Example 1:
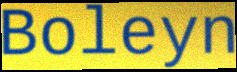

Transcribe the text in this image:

Boleyn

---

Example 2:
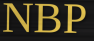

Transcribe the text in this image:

NBP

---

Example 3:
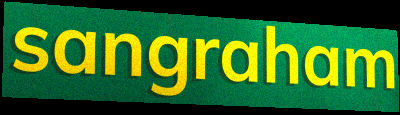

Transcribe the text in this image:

sangraham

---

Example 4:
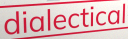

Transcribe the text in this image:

dialectical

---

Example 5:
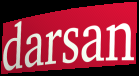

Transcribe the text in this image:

darsan